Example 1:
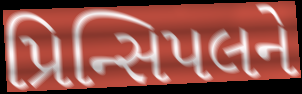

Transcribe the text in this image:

પ્રિન્સિપલને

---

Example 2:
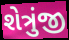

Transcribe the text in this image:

શેત્રુંજી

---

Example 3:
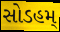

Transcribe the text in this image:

સોડહમ્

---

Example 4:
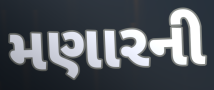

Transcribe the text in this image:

મણારની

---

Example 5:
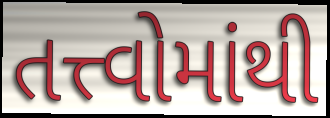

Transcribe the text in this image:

તત્ત્વોમાંથી